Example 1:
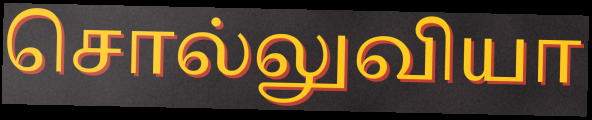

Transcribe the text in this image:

சொல்லுவியா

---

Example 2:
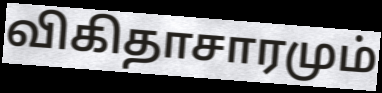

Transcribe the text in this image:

விகிதாசாரமும்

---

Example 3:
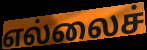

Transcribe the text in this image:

எல்லைச்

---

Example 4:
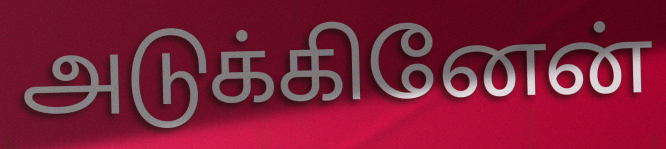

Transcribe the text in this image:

அடுக்கினேன்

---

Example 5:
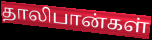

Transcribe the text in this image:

தாலிபான்கள்